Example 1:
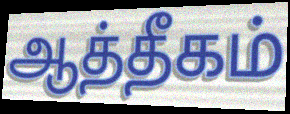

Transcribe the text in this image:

ஆத்தீகம்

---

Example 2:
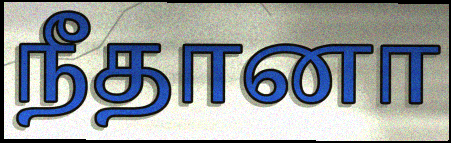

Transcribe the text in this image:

நீதானா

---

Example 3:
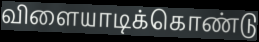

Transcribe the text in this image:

விளையாடிக்கொண்டு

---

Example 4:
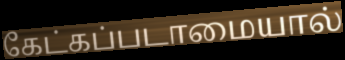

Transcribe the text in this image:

கேட்கப்படாமையால்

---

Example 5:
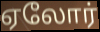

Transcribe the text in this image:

ஏலோர்